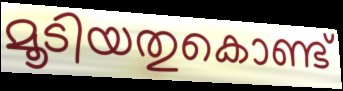
മൂടിയതുകൊണ്ട്